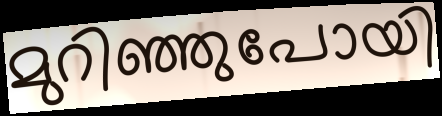
മുറിഞ്ഞുപോയി